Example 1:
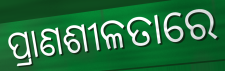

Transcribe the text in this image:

ପ୍ରାଣଶୀଳତାରେ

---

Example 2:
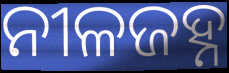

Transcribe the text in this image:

ନୀଳଜହ୍ନ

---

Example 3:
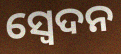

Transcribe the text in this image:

ସ୍ଵେଦନ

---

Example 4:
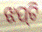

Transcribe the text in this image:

ଝପ୍‌ଟି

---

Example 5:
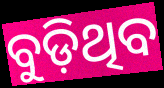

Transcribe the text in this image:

ବୁଡ଼ିଥିବ